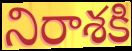
నిరాశకి